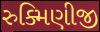
રુક્મિણીજી